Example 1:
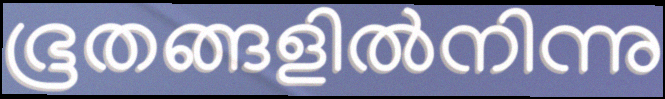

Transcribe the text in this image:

ഭൂതങ്ങളിൽനിന്നു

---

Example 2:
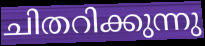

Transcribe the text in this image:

ചിതറിക്കുന്നു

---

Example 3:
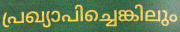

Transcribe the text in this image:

പ്രഖ്യാപിച്ചെങ്കിലും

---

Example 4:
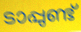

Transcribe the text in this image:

ടാപ്പുണ്ട്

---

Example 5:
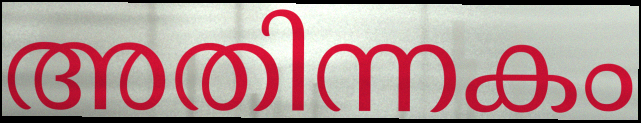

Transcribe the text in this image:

അതിന്നകം